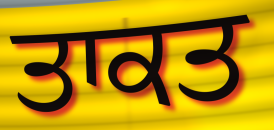
ਤਾਕਤ